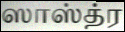
ஸாஸ்த்ர